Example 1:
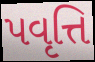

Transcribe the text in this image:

પવૃત્તિ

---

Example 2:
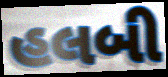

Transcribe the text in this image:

હલબી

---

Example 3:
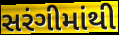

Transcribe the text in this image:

સરંગીમાંથી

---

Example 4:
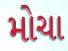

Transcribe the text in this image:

મોચા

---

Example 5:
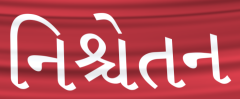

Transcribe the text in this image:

નિશ્ચેતન